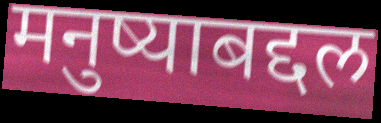
मनुष्याबद्दल